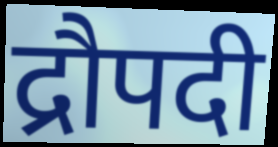
द्रौपदी